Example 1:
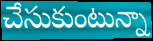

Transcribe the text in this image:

చేసుకుంటున్నా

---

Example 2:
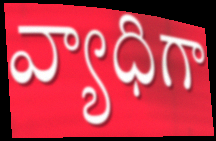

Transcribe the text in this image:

వ్యాధిగా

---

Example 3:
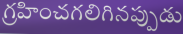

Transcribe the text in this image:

గ్రహించగలిగినప్పుడు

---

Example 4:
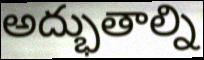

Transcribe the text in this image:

అద్భుతాల్ని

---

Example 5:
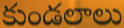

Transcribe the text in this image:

కుండలాలు